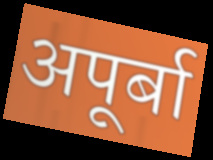
अपूर्बा